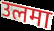
उलमा